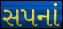
સપનાં